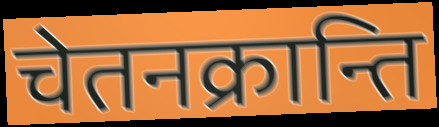
चेतनक्रान्ति